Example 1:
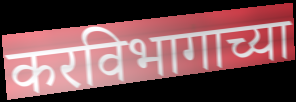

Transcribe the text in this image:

करविभागाच्या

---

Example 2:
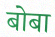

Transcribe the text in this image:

बोबा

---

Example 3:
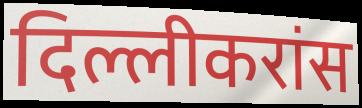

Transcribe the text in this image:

दिल्लीकरांस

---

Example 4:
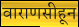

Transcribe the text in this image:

वाराणसीहून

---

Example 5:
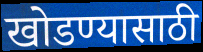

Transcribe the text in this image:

खोडण्यासाठी